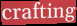
crafting